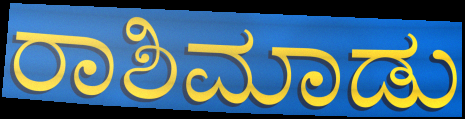
ರಾಶಿಮಾಡು